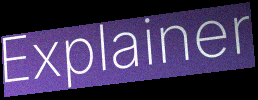
Explainer